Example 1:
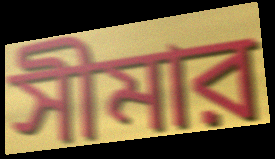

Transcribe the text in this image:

সীমার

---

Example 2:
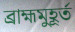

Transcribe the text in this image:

ব্রাহ্মমুহূর্ত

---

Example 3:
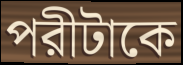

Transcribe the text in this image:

পরীটাকে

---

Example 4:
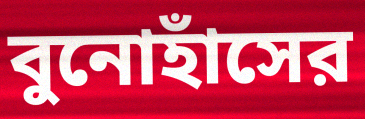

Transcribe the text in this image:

বুনোহাঁসের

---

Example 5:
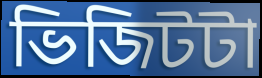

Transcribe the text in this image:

ভিজিটটা